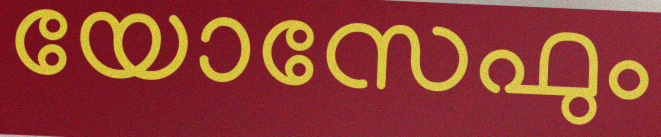
യോസേഫും